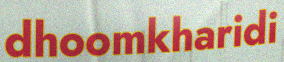
dhoomkharidi